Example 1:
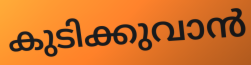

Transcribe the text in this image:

കുടിക്കുവാൻ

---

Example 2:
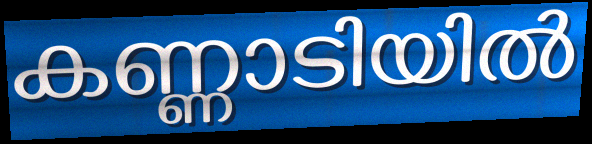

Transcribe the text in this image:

കണ്ണാടിയിൽ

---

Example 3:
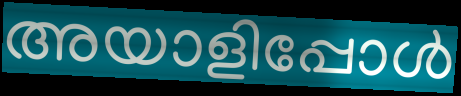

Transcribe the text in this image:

അയാളിപ്പോൾ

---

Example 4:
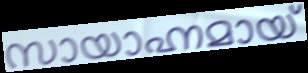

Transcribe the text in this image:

സായാഹ്നമായ്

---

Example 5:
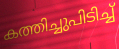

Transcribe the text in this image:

കത്തിച്ചുപിടിച്ച്